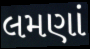
લમણાં